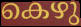
കെഴു